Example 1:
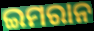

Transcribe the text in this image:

ଇମରାନ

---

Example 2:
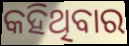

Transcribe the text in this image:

କହିଥିବାର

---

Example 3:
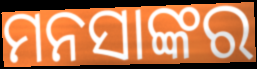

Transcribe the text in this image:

ମନସାଙ୍କର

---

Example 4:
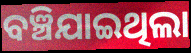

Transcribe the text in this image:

ବଞ୍ଚିଯାଇଥିଲା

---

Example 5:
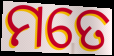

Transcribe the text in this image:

ମତେ